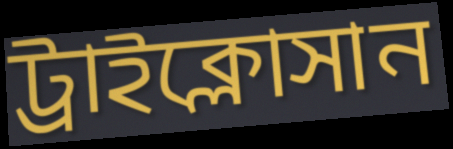
ট্রাইক্লোসান